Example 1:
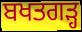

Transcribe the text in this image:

ਬਖਤਗੜ੍ਹ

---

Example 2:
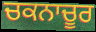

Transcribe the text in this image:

ਚਕਨਾਚੂਰ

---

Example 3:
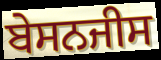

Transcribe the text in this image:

ਬੇਸਨਜੀਸ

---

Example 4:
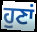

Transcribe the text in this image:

ਹੁਣਾਂ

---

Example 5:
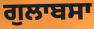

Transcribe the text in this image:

ਗੁਲਾਬਸਾ